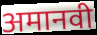
अमानवी